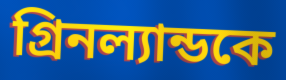
গ্রিনল্যান্ডকে